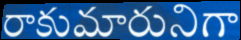
రాకుమారునిగా